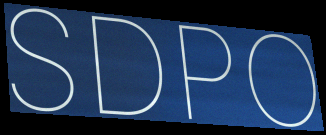
SDPO